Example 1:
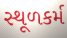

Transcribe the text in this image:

સ્થૂળકર્મ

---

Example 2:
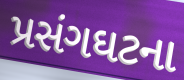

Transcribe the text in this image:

પ્રસંગઘટના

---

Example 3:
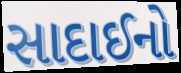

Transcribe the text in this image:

સાદાઈનો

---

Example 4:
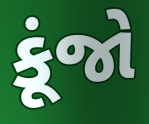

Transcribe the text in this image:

કૂંજો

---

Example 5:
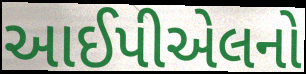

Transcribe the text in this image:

આઈપીએલનો